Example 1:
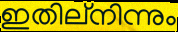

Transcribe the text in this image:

ഇതില്നിന്നും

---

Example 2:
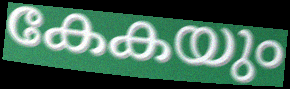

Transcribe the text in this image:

കേകയും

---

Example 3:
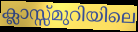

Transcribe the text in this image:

ക്ലാസ്സ്മുറിയിലെ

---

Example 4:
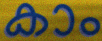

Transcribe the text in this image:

കാം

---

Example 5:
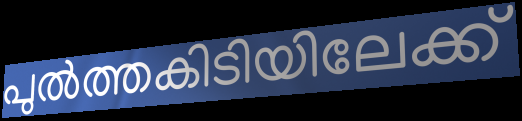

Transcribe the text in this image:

പുൽത്തകിടിയിലേക്ക്